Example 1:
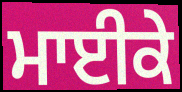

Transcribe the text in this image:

ਮਾਈਕੇ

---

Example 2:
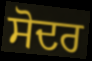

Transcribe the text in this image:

ਸੋਦਰ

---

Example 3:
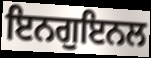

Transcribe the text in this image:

ਇਨਗੁਇਨਲ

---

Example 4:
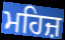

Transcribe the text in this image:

ਮਹਿਜ਼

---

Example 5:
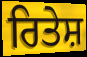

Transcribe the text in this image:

ਰਿਤੇਸ਼